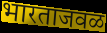
भारताजवळ